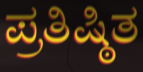
ಪ್ರತಿಷ್ಠಿತ